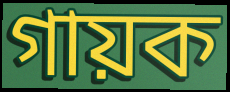
গায়ক